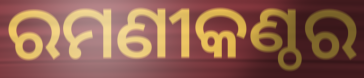
ରମଣୀକଣ୍ଠର